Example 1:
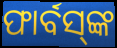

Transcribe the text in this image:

ଫାର୍ବସ୍‌ଙ୍କ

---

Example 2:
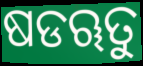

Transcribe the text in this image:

ଷଡୠତୁ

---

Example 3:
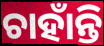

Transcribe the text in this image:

ଚାହାଁନ୍ତି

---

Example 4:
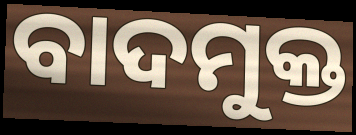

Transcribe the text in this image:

ବାଦମୁକ୍ତ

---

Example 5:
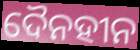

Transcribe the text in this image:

ଦୈନହୀନ